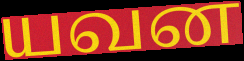
யவன